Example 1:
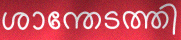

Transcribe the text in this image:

ശാന്തേടത്തി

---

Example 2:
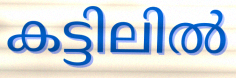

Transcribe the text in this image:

കട്ടിലിൽ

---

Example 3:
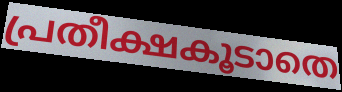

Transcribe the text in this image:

പ്രതീക്ഷകൂടാതെ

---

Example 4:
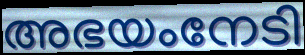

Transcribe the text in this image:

അഭയംനേടി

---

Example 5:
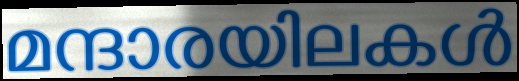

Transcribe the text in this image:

മന്ദാരയിലകൾ